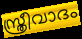
സ്ത്രീവാദം